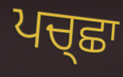
ਪਚ੍ਛਾ